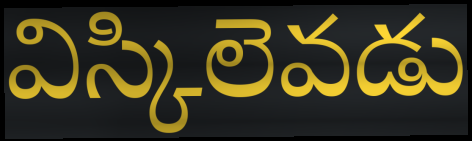
విస్కిలెవడు